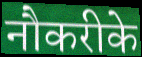
नौकरीके